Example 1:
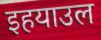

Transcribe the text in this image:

इहयाउल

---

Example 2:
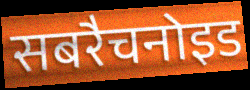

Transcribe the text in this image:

सबरैचनोइड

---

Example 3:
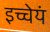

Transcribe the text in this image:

इच्चेयं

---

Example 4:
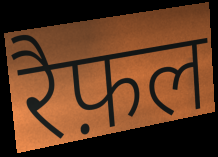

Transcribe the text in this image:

रैफ़ल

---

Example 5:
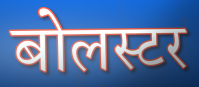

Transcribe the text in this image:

बोलस्टर